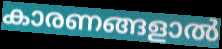
കാരണങ്ങളാൽ